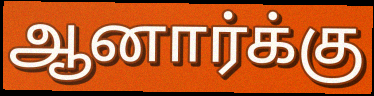
ஆனார்க்கு